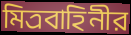
মিত্রবাহিনীর